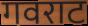
गवराट